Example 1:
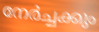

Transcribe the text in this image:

നേർച്ചക്കും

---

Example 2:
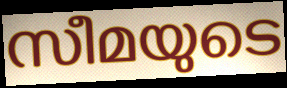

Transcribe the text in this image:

സീമയുടെ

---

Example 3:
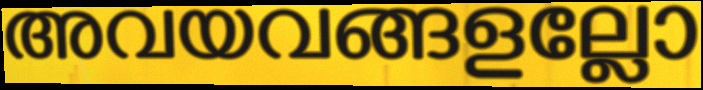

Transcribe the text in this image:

അവയവങ്ങളല്ലോ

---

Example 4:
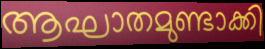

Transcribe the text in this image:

ആഘാതമുണ്ടാക്കി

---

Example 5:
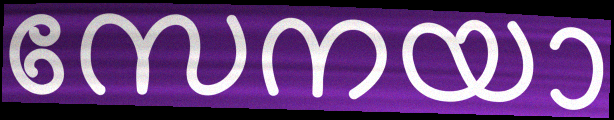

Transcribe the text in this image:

സേനയാ